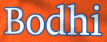
Bodhi